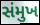
સંમુખ